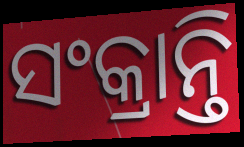
ସଂକ୍ରାନ୍ତି